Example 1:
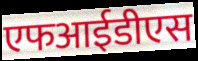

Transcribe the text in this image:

एफआईडीएस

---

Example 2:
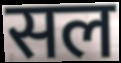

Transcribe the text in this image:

सल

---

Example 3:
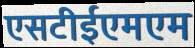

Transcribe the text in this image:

एसटीईएमएम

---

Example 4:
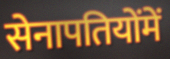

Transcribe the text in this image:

सेनापतियोंमें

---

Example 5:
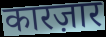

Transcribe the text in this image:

कारज़ार